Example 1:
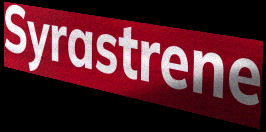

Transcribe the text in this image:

Syrastrene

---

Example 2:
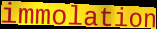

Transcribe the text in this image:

immolation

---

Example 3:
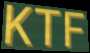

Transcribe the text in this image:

KTF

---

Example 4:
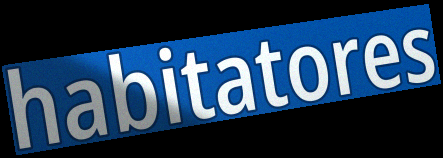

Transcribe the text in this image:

habitatores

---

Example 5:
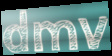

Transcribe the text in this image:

dmv